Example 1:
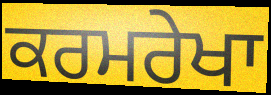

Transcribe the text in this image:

ਕਰਮਰੇਖਾ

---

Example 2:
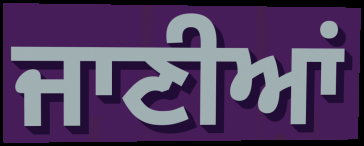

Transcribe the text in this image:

ਜਾਣੀਆਂ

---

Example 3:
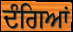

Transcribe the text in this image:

ਦੰਗਿਆਂ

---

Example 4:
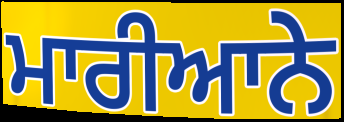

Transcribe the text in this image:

ਮਾਰੀਆਨੇ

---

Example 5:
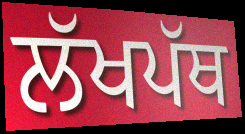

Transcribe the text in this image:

ਲੱਖਪੱਥ